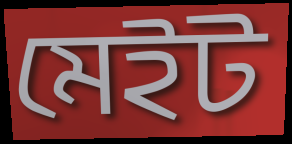
মেইট